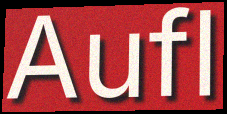
Aufl